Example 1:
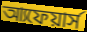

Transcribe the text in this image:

আ্যফেয়ার্স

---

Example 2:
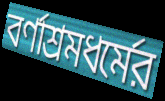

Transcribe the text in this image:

বর্ণাশ্রমধর্মের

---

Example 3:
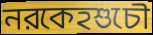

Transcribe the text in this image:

নরকেহশুচৌ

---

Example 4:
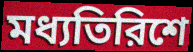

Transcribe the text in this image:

মধ্যতিরিশে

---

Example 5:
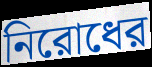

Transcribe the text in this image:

নিরোধের